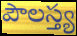
పౌలస్త్య